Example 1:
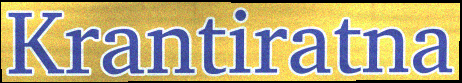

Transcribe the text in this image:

Krantiratna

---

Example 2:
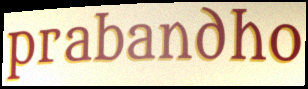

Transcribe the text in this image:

prabandho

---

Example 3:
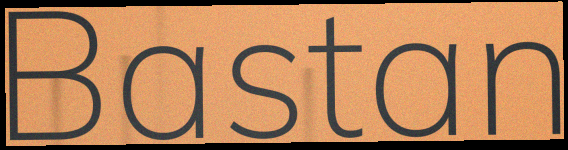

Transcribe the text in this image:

Bastan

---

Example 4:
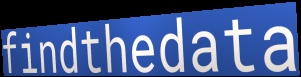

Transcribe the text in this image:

findthedata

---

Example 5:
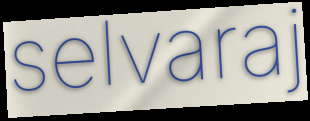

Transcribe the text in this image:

selvaraj